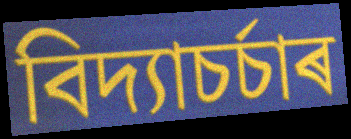
বিদ্যাচৰ্চাৰ